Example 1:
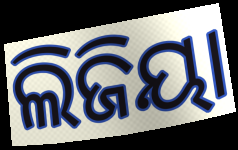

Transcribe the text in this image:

ଲିଜିୟା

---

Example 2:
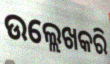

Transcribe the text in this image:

ଉଲ୍ଲେଖକରି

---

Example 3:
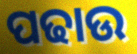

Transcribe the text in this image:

ପଢାଉ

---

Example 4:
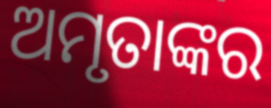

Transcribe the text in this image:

ଅମୃତାଙ୍କର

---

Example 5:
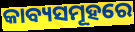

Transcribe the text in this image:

କାବ୍ୟସମୂହରେ